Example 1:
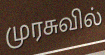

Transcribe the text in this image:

முரசுவில்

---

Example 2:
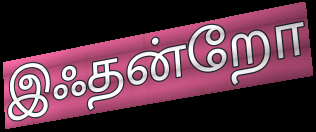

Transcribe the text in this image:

இஃதன்றோ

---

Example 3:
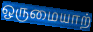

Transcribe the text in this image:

ஒருமையாற்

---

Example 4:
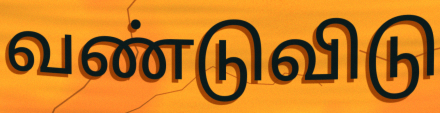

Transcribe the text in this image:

வண்டுவிடு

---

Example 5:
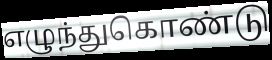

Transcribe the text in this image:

எழுந்துகொண்டு